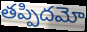
తప్పిదమో